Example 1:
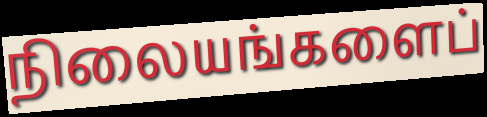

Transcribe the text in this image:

நிலையங்களைப்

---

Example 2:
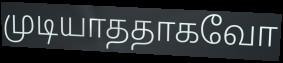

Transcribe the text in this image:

முடியாததாகவோ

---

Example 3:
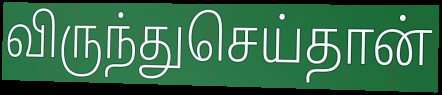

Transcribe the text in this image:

விருந்துசெய்தான்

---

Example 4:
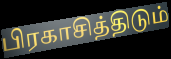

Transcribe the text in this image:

பிரகாசித்திடும்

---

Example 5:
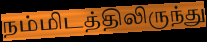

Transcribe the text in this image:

நம்மிடத்திலிருந்து